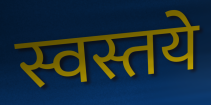
स्वस्तये